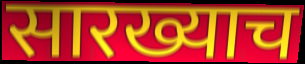
सारख्याच